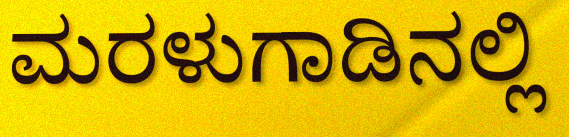
ಮರಳುಗಾಡಿನಲ್ಲಿ